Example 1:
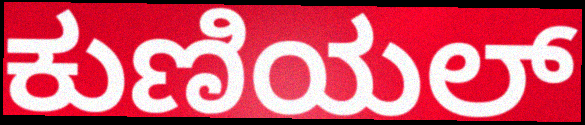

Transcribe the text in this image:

ಕುಣಿಯಲ್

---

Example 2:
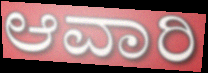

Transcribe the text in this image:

ಆವಾರಿ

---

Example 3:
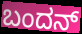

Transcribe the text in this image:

ಬಂದನ್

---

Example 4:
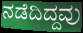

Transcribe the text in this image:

ನಡೆದಿದ್ದವು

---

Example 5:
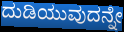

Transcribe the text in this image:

ದುಡಿಯುವುದನ್ನೇ